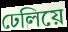
ঢেলিয়ে